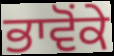
ਭਾਵੋਂਕੇ